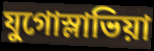
যুগোস্লাভিয়া